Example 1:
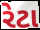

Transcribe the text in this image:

રેટા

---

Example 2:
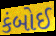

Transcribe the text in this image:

કંબોઈ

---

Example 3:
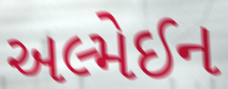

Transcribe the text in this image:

અલ્મેઈન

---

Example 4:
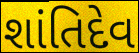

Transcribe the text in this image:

શાંતિદેવ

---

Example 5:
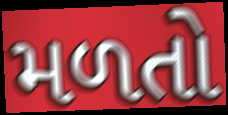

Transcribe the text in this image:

મળતો